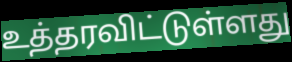
உத்தரவிட்டுள்ளது